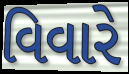
વિવારે